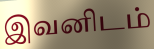
இவனிடம்